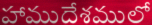
హాముదేశములో